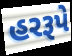
હરરૂપે